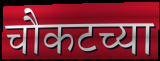
चौकटच्या